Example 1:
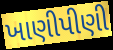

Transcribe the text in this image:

ખાણીપીણી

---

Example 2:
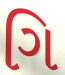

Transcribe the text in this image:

ગિ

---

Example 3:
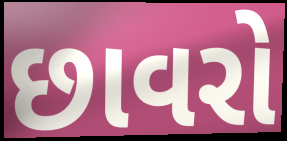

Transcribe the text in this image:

છાવરો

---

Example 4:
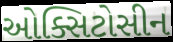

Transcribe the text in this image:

ઓક્સિટોસીન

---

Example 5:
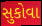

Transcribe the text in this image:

સુકોવા